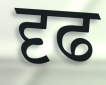
दृढ